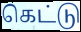
கெட்டு